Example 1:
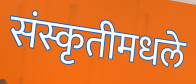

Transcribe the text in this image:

संस्कृतीमधले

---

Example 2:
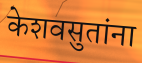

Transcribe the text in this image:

केशवसुतांना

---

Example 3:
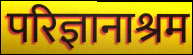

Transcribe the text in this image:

परिज्ञानाश्रम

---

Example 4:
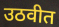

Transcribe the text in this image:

उठवीत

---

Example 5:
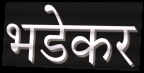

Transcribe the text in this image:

भडेकर